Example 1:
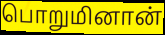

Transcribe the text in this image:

பொறுமினான்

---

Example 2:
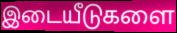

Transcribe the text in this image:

இடையீடுகளை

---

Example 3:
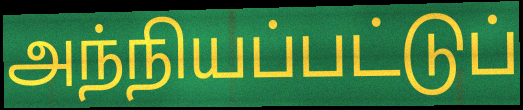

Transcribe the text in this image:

அந்நியப்பட்டுப்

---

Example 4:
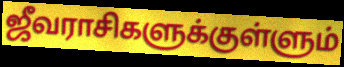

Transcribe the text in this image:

ஜீவராசிகளுக்குள்ளும்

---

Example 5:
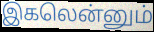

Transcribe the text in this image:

இகலென்னும்